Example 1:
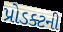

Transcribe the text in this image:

પ્રોડક્ટની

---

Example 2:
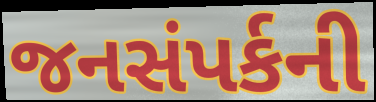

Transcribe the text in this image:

જનસંપર્કની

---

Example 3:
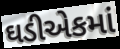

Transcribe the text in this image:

ઘડીએકમાં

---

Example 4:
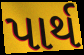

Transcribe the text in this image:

પાર્થ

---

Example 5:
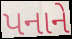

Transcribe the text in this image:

પનાને